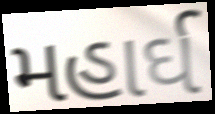
મહાર્ઘ